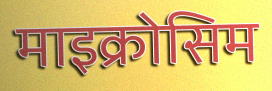
माइक्रोसिम